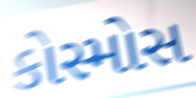
કોસ્મોસ